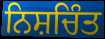
ਨਿਸ਼ਚਿੰਤ